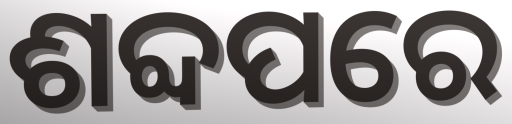
ଶବ୍ଦପରେ